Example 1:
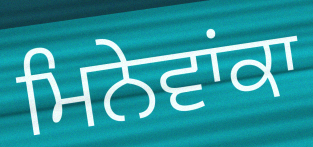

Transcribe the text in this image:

ਮਿਨੇਵਾਂਕਾ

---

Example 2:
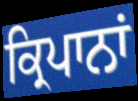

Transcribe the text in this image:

ਕ੍ਰਿਪਾਨਾਂ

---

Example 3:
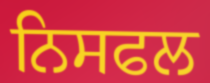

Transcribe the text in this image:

ਨਿਸਫਲ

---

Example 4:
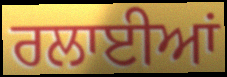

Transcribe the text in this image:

ਰਲਾਈਆਂ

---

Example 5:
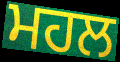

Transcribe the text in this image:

ਮਹਲ